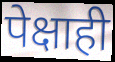
पेक्षाही